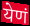
येणं